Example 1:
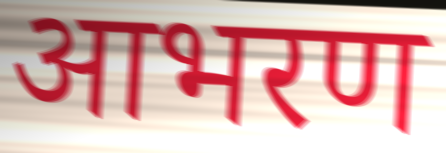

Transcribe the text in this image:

आभरण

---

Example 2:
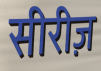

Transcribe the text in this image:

सीरीज़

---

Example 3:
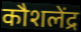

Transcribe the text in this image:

कौशलेंद्र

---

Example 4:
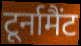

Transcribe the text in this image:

टूर्नामैंट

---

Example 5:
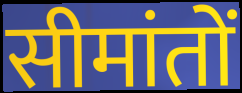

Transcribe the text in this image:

सीमांतों